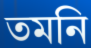
তমনি